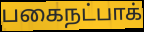
பகைநட்பாக்